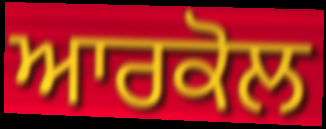
ਆਰਕੋਲ